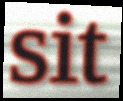
sit